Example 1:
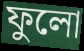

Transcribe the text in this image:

ফুলো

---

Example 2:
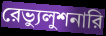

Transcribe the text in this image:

রেভ্যুলুশনারি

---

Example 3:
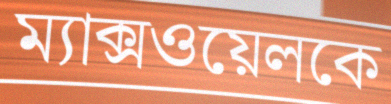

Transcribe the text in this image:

ম্যাক্সওয়েলকে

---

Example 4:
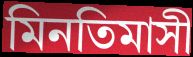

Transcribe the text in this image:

মিনতিমাসী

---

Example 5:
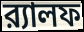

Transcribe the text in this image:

র‍্যালফ